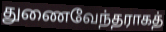
துணைவேந்தராகத்